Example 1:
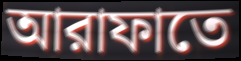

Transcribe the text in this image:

আরাফাতে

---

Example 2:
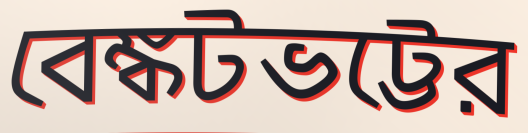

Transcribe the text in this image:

বেঙ্কটভট্টের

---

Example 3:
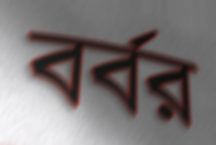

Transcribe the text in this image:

বর্বর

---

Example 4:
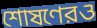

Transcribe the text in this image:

শোষণেরও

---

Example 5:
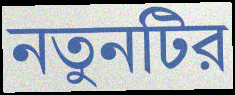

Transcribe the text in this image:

নতুনটির